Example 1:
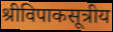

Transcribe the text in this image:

श्रीविपाकसूत्रीय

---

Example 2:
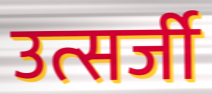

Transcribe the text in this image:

उत्सर्जी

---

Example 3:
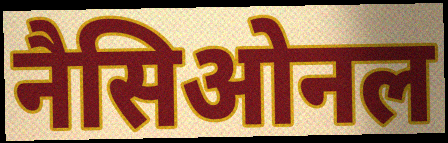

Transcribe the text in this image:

नैसिओनल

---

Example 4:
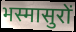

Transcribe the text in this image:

भस्मासुरों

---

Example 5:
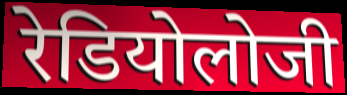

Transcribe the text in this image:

रेडियोलोजी